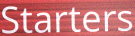
Starters